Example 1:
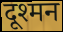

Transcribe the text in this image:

दूश्मन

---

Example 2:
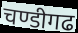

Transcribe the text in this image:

चण्डीगढ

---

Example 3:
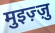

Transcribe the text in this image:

मुइज़्ज़ु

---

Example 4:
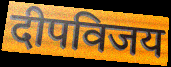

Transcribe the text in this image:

दीपविजय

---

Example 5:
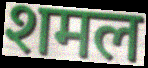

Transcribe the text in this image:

शमल